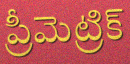
ప్రీమెట్రిక్